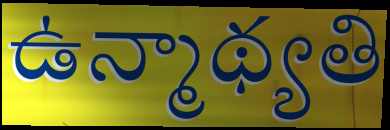
ఉన్మాథ్యతి